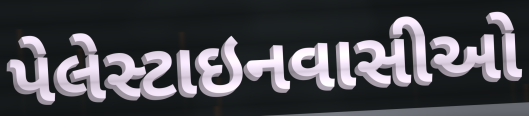
પેલેસ્ટાઇનવાસીઓ